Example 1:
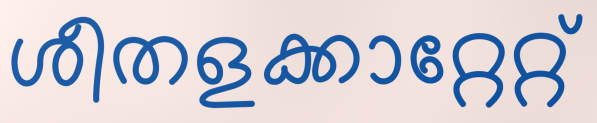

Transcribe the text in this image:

ശീതളക്കാറ്റേറ്റ്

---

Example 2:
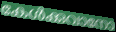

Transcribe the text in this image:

കേൾക്കുവാനോ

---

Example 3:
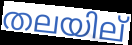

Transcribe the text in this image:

തലയില്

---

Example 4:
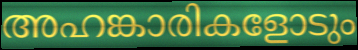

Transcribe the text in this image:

അഹങ്കാരികളോടും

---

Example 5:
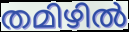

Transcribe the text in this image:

തമിഴിൽ